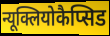
न्यूक्लियोकैप्सिड